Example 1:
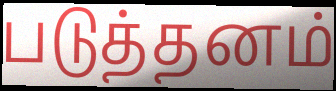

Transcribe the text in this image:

படுத்தனம்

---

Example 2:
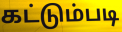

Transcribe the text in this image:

கட்டும்படி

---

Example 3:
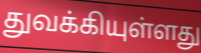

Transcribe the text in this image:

துவக்கியுள்ளது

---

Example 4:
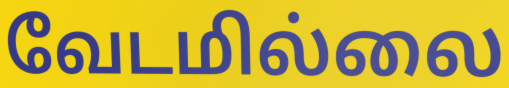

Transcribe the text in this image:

வேடமில்லை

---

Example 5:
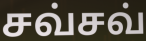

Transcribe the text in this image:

சவ்சவ்